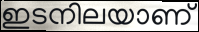
ഇടനിലയാണ്